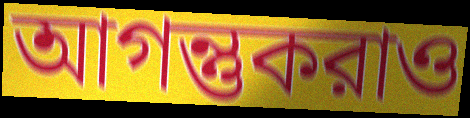
আগন্তুকরাও